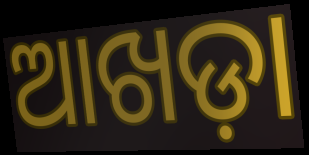
ଆଖଡ଼ା